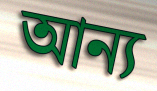
আন্য